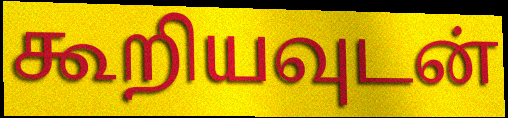
கூறியவுடன்